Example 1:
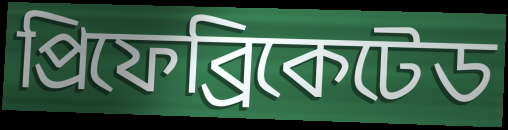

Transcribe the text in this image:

প্রিফেব্রিকেটেড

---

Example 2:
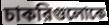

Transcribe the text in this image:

চাকরিগুলোকে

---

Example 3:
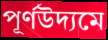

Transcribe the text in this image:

পূর্ণউদ্যমে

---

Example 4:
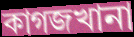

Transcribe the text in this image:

কাগজখানা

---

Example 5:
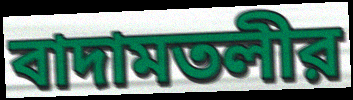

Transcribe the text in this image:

বাদামতলীর